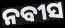
ନବୀସ